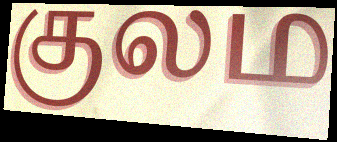
குலம